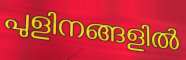
പുളിനങ്ങളിൽ